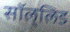
सॉल्लिड